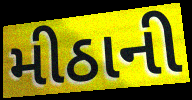
મીઠાની